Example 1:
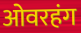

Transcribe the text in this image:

ओवरहंग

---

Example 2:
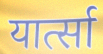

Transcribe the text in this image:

यार्त्सा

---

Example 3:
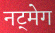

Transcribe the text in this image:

नट्मेग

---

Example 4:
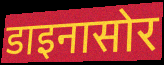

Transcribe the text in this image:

डाइनासोर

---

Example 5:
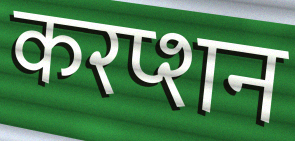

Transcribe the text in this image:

करप्‍शन